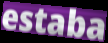
estaba